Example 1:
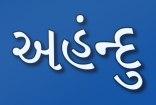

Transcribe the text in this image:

અહંન્દુ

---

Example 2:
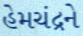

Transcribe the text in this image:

હેમચંદ્રને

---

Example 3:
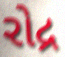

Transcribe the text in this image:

રોદ્ર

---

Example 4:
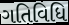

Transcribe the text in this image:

ગતિવિધિ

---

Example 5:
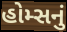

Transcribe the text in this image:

હોમ્સનું